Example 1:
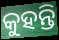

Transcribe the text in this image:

କୁହନ୍ତି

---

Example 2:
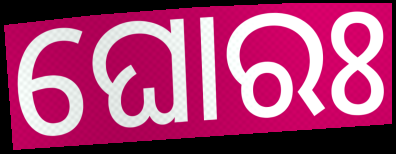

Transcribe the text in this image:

ଘୋରଃ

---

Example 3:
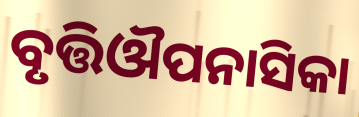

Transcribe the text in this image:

ବୃତ୍ତିଔପନାସିକା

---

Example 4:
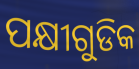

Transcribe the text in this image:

ପକ୍ଷୀଗୁଡିକ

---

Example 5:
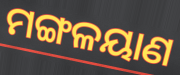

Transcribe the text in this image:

ମଙ୍ଗଳୟାଣ